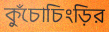
কুঁচোচিংড়ির